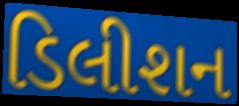
ડિલીશન